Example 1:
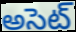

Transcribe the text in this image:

అసెట్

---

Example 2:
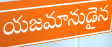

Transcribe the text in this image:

యజమానుడైన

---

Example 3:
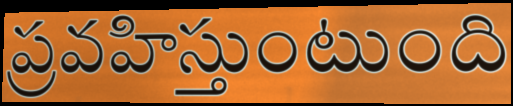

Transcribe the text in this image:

ప్రవహిస్తుంటుంది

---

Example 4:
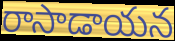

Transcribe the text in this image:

రాసాడాయన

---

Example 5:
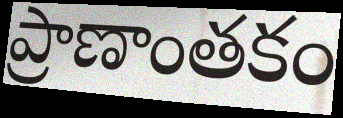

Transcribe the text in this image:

ప్రాణాంతకం